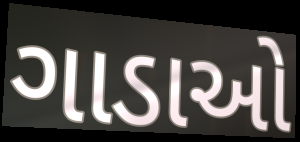
ગાડાઓ